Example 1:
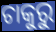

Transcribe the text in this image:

ଚାକୁରୁ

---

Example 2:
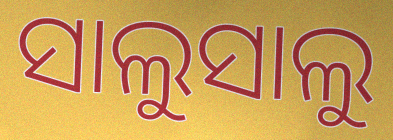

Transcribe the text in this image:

ସାଲୁସାଲୁ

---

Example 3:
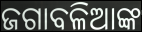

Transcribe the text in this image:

ଜଗାବଳିଆଙ୍କ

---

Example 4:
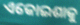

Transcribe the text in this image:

ଏକୋଇଶାକୁ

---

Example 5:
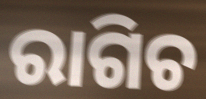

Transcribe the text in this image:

ରାଗିଚ